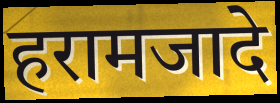
हरामजादे